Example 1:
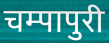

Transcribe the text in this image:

चम्पापुरी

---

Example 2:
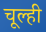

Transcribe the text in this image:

चूल्ही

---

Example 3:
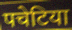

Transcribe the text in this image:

पचेटिया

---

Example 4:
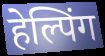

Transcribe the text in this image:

हेल्पिंग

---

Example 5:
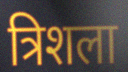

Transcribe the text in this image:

त्रिशला